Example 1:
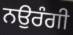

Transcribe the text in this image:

ਨਉਰੰਗੀ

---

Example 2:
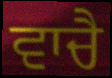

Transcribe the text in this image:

ਵਾਚੈ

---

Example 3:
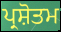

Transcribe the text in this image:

ਪ੍ਰਸ਼ੋਤਮ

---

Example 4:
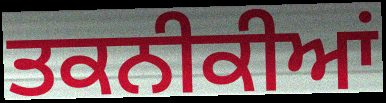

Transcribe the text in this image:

ਤਕਨੀਕੀਆਂ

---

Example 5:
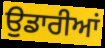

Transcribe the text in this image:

ਉੁਡਾਰੀਆਂ